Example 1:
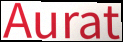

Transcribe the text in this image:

Aurat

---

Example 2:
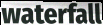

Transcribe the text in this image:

waterfall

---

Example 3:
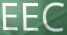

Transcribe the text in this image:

EEC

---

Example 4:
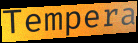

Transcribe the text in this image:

Tempera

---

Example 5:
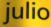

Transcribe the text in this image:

julio